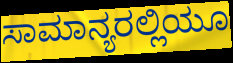
ಸಾಮಾನ್ಯರಲ್ಲಿಯೂ